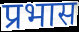
प्रभास